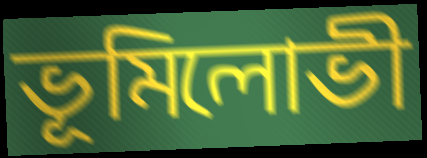
ভূমিলোভী